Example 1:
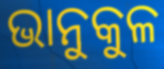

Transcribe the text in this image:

ଭାନୁକୁଳ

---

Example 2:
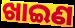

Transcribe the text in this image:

ଖାଇଣ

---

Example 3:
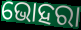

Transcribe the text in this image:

ଭୋହରା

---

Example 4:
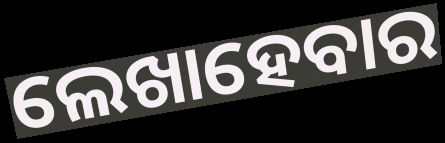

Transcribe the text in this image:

ଲେଖାହେବାର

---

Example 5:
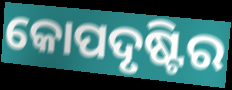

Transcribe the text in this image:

କୋପଦୃଷ୍ଟିର